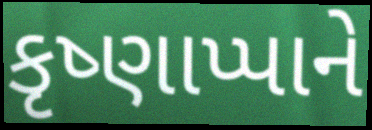
કૃષ્ણાપ્પાને